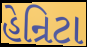
હેન્રિટા